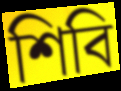
শিবি